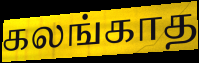
கலங்காத